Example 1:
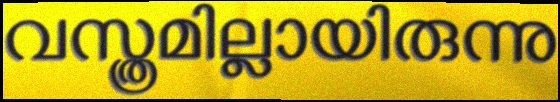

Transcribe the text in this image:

വസ്ത്രമില്ലായിരുന്നു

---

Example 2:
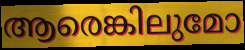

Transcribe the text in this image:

ആരെങ്കിലുമോ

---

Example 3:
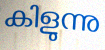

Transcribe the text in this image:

കിളുന്നു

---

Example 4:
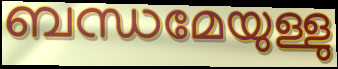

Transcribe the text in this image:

ബന്ധമേയുള്ളു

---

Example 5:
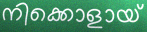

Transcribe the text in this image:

നിക്കൊളായ്